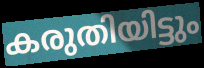
കരുതിയിട്ടും